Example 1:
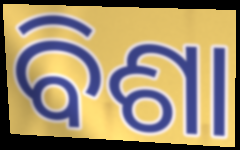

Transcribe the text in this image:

ବିଶା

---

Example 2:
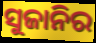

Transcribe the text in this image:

ସୁଜାନିର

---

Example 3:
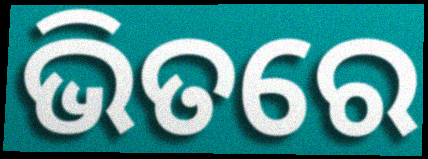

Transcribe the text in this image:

ଭିତରେ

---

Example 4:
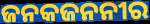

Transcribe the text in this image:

ଜନକଜନନୀର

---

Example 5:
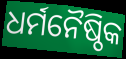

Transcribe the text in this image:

ଧର୍ମନୈଷ୍ଠିକ